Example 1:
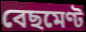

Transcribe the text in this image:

বেছমেণ্ট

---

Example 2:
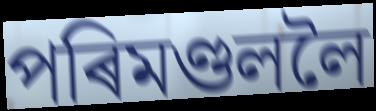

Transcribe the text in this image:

পৰিমণ্ডললৈ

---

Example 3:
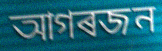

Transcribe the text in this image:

আগৰজন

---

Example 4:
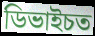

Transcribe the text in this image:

ডিভাইচত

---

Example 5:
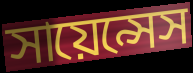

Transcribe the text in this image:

সায়েন্সেস